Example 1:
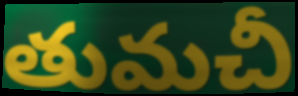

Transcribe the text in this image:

తుమచీ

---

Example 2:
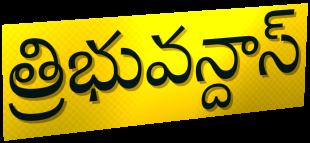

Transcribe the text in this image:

త్రిభువన్దాస్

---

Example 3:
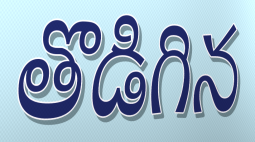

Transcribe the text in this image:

తొడిగిన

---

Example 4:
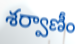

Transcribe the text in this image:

శర్వాణీం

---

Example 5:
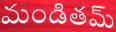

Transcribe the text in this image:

మండితమ్